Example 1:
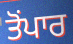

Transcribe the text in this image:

ਤੋਂਪਾਰ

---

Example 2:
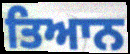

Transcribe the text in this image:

ਤਿਆਨ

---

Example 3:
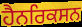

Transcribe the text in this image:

ਹੈਨਰਿਕਸਨ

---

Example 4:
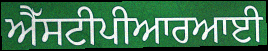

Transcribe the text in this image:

ਐੱਸਟੀਪੀਆਰਆਈ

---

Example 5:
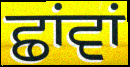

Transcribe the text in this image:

ਛਾਂਵਾਂ